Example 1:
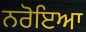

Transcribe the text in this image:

ਨਰੋਇਆ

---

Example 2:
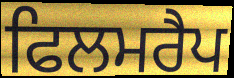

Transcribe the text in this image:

ਫਿਲਮਰੈਪ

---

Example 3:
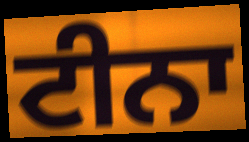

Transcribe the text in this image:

ਟੀਨਾ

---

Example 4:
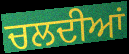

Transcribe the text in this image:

ਚਲਦੀਆਂ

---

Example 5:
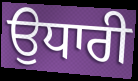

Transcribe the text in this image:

ਉਧਾਰੀ